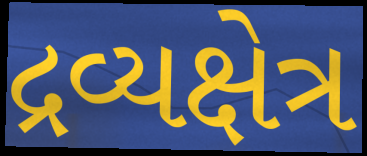
દ્રવ્યક્ષેત્ર